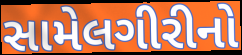
સામેલગીરીનો